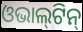
ଓଭାଲ୍‍ଟିନ୍